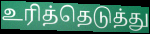
உரித்தெடுத்து